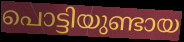
പൊട്ടിയുണ്ടായ